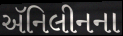
ઍનિલીનના